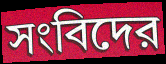
সংবিদের